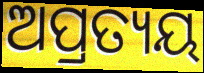
ଅପ୍ରତ୍ୟୟ